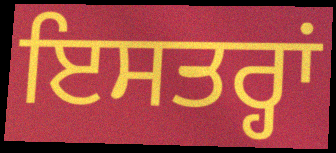
ਇਸਤਰ੍ਹਾਂ